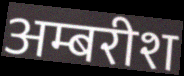
अम्बरीश